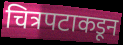
चित्रपटाकडून